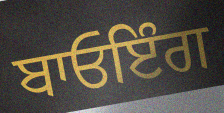
ਬਾਓਇੰਗ